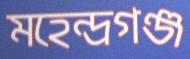
মহেন্দ্রগঞ্জ